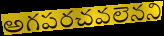
అగపరచవలెనని